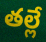
తల్లే